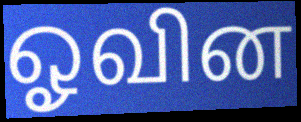
ஓவின